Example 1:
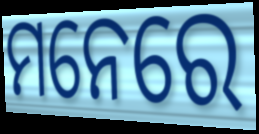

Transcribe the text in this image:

ମନେରେ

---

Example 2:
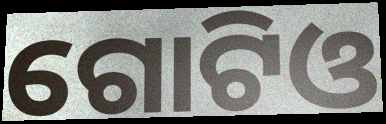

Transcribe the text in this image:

ଗୋଟିଓ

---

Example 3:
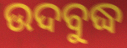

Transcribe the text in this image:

ଉଦବୁଦ୍ଧ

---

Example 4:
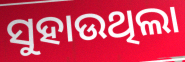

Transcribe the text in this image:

ସୁହାଉଥିଲା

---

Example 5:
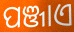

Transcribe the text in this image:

ପଞ୍ଜାଏ